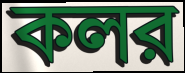
কলর